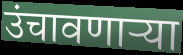
उंचावणाऱ्या